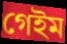
গেইম